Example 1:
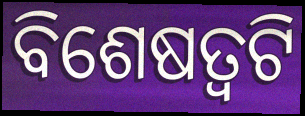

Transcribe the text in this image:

ବିଶେଷତ୍ୱଟି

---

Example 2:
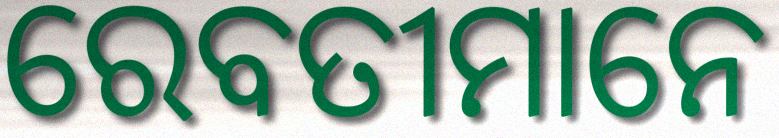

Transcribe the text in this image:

ରେବତୀମାନେ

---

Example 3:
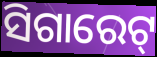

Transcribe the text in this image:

ସିଗାରେଟ୍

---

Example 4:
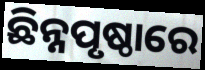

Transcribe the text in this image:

ଛିନ୍ନପୃଷ୍ଠାରେ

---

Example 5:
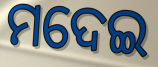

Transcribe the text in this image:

ମଦେଇ